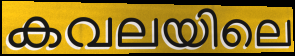
കവലയിലെ